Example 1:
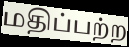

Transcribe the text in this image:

மதிப்பற்ற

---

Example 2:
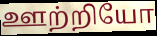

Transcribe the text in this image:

ஊற்றியோ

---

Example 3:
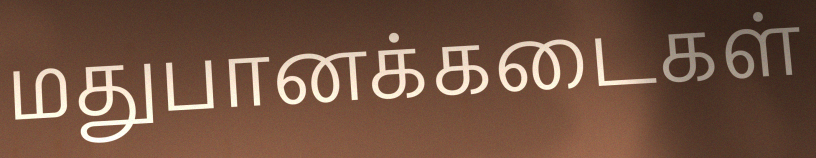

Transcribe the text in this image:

மதுபானக்கடைகள்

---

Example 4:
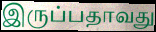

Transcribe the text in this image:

இருப்பதாவது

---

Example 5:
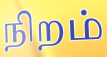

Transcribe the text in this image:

நிறம்